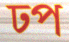
ঢপ